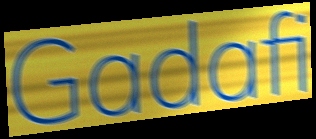
Gadafi